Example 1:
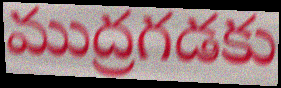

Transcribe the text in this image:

ముద్రగడకు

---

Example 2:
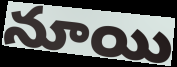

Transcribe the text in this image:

నూయి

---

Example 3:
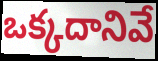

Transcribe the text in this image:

ఒక్కదానివే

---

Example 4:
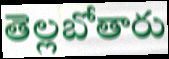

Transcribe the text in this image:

తెల్లబోతారు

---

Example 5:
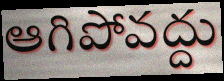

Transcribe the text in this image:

ఆగిపోవద్దు